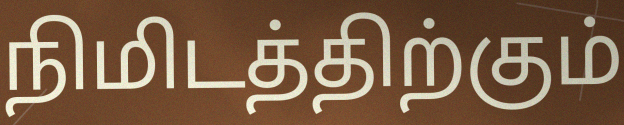
நிமிடத்திற்கும்